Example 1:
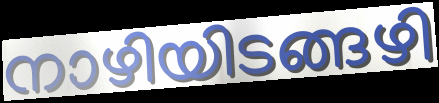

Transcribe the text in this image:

നാഴിയിടങ്ങഴി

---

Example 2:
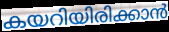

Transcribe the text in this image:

കയറിയിരിക്കാൻ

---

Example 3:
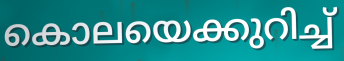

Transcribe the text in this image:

കൊലയെക്കുറിച്ച്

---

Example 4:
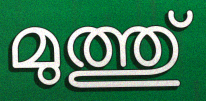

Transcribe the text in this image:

മുത്തു്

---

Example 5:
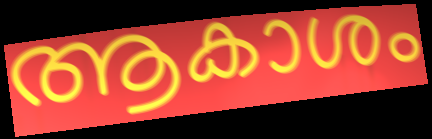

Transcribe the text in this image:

ആകാശം